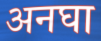
अनघा